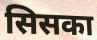
सिसका